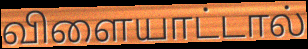
விளையாட்டால்